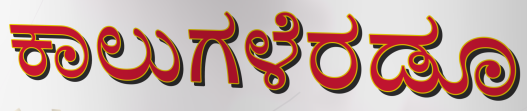
ಕಾಲುಗಳೆರಡೂ